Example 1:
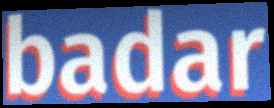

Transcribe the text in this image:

badar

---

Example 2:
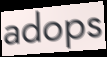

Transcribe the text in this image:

adops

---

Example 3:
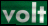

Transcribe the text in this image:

volt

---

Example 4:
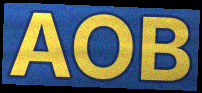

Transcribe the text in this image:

AOB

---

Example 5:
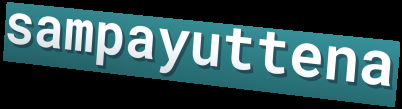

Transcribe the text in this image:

sampayuttena